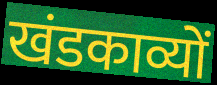
खंडकाव्यों